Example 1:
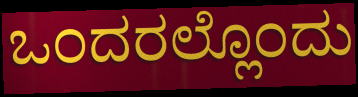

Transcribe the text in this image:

ಒಂದರಲ್ಲೊಂದು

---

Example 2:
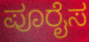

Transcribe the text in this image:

ಪೂರೈಸ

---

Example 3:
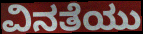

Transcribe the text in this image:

ವಿನತೆಯು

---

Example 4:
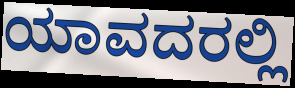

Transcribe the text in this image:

ಯಾವದರಲ್ಲಿ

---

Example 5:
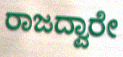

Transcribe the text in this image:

ರಾಜದ್ವಾರೇ